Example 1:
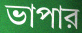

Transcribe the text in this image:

ভাপার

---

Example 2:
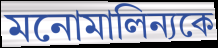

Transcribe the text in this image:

মনোমালিন্যকে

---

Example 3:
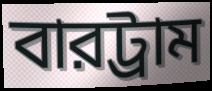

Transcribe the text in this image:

বারট্রাম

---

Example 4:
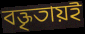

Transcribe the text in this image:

বক্তৃতায়ই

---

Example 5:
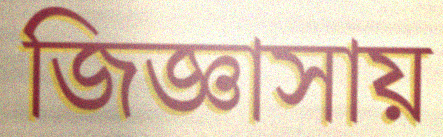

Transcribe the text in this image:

জিজ্ঞাসায়